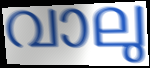
വാലു